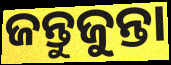
ଜନ୍ତୁଜୁନ୍ତା